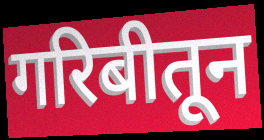
गरिबीतून